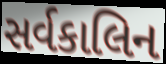
સર્વકાલિન